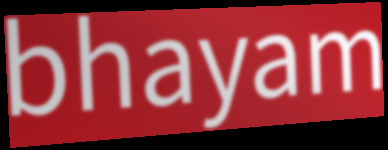
bhayam